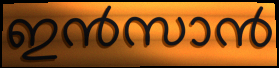
ഇൻസാൻ